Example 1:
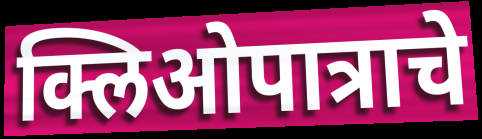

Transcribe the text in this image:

क्लिओपात्राचे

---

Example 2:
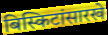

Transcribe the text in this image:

बिस्किटांसारखे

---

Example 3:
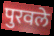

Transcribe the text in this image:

पुरवले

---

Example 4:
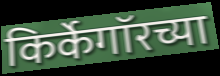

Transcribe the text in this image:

किर्केगॉरच्या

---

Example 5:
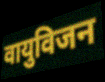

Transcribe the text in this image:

वायुविजन